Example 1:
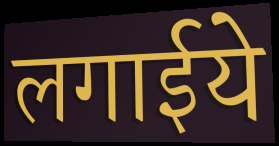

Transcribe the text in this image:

लगाईये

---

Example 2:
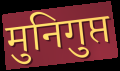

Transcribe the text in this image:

मुनिगुप्त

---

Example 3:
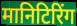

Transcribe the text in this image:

मानिटिरिंग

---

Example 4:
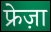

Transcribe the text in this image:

फ्रेज़ा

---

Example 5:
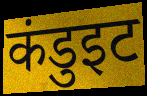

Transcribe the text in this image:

कंडुइट